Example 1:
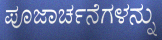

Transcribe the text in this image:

ಪೂಜಾರ್ಚನೆಗಳನ್ನು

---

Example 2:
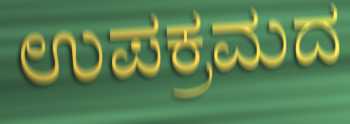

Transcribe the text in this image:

ಉಪಕ್ರಮದ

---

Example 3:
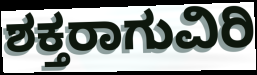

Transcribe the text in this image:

ಶಕ್ತರಾಗುವಿರಿ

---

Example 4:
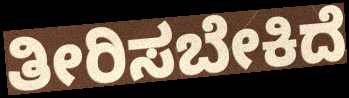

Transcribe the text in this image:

ತೀರಿಸಬೇಕಿದೆ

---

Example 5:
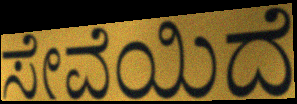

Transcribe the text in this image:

ಸೇವೆಯಿದೆ